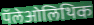
पॅलेओलिथिक